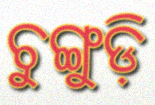
ଚୁଙ୍ଗୁଡ଼ି